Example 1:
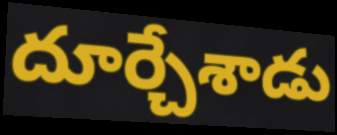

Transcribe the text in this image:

దూర్చేశాడు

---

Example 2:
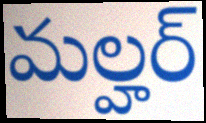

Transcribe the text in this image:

మల్హర్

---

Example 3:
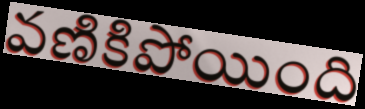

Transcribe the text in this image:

వణికిపోయింది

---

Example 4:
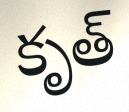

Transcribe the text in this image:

కృత్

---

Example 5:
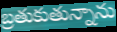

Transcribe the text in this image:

బ్రతుకుతున్నాను